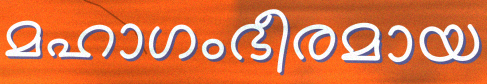
മഹാഗംഭീരമായ